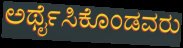
ಅರ್ಥೈಸಿಕೊಂಡವರು